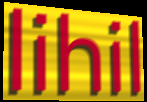
lihil